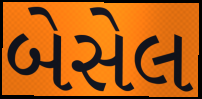
બેસેલ